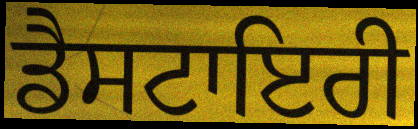
ਡੈਸਟਾਇਰੀ